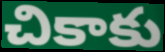
చికాకు